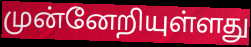
முன்னேறியுள்ளது